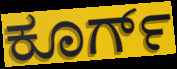
ಕೂರ್ಗ್